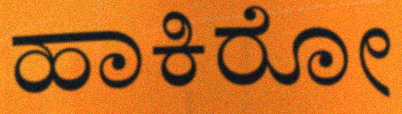
ಹಾಕಿರೋ